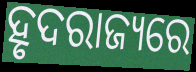
ହୃଦରାଜ୍ୟରେ